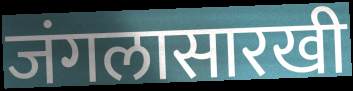
जंगलासारखी